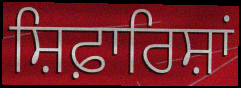
ਸ਼ਿਫ਼ਾਰਿਸ਼ਾਂ